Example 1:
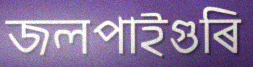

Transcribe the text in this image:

জলপাইগুৰি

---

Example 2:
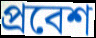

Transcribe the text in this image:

প্ৰবেশ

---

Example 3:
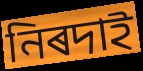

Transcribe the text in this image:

নিৰদাই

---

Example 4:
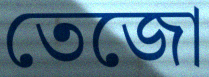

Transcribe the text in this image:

তেজো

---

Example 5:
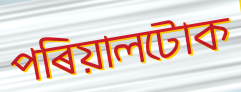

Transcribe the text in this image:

পৰিয়ালটোক